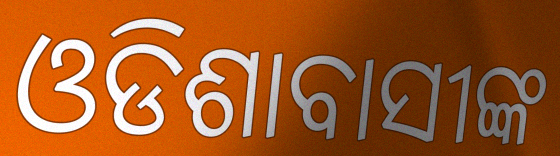
ଓଡିଶାବାସୀଙ୍କ